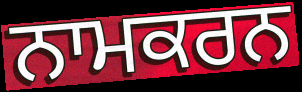
ਨਾਮਕਰਨ